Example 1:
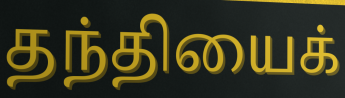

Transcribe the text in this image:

தந்தியைக்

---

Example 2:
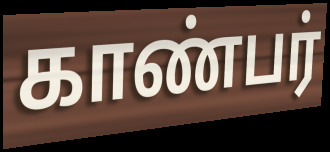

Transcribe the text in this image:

காண்பர்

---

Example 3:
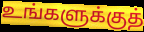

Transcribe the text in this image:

உங்களுக்குத்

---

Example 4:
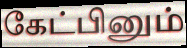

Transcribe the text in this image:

கேட்பினும்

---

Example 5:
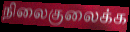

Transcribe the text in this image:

நிலைகுலைக்க